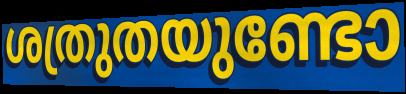
ശത്രുതയുണ്ടോ